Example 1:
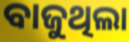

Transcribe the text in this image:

ବାଜୁଥିଲା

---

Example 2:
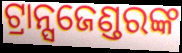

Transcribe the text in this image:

ଟ୍ରାନ୍ସଜେଣ୍ଡରଙ୍କ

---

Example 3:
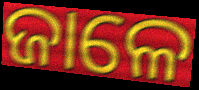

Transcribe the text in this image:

ଜାଳେ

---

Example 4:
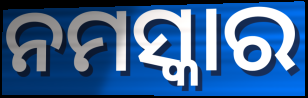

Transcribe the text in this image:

ନମସ୍କାର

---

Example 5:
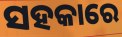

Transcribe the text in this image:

ସହକାରେ